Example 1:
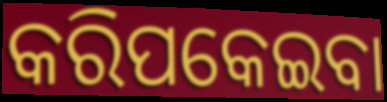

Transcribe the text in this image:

କରିପକେଇବା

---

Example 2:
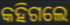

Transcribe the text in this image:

କହିଗଲେ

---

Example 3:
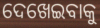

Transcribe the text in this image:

ଦେଖେଇବାକୁ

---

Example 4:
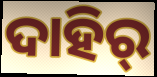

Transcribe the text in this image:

ଦାହିର୍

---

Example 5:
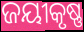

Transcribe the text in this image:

ଜୟୀକୃଷ୍ଣ